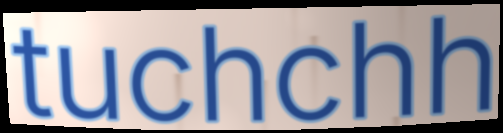
tuchchh